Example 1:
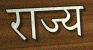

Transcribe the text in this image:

राज्य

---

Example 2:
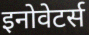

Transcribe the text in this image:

इनोवेटर्स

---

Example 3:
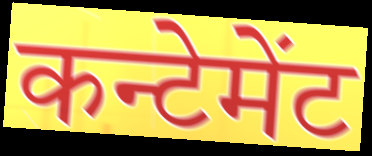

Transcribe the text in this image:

कन्टेमेंट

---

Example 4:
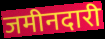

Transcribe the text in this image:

जमीनदारी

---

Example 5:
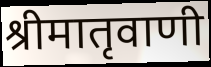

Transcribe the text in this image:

श्रीमातृवाणी